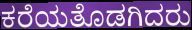
ಕರೆಯತೊಡಗಿದರು